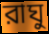
রাঘু